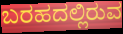
ಬರಹದಲ್ಲಿರುವ